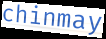
chinmay